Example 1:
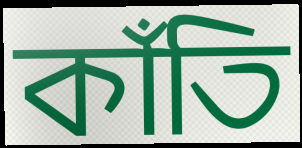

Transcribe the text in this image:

কাঁতি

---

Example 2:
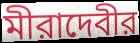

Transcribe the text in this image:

মীরাদেবীর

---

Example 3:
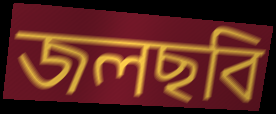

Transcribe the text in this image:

জলছবি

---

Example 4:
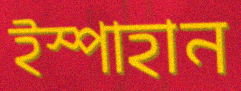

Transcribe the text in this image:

ইস্পাহান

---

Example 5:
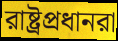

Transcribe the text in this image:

রাষ্ট্রপ্রধানরা